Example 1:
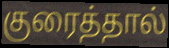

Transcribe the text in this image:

குரைத்தால்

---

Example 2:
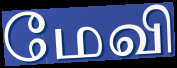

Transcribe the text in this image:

மேவி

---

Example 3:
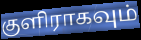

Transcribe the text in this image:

குளிராகவும்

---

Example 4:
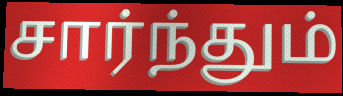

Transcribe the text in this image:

சார்ந்தும்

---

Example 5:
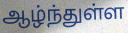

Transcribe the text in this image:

ஆழ்ந்துள்ள